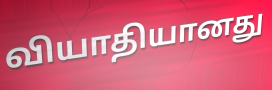
வியாதியானது